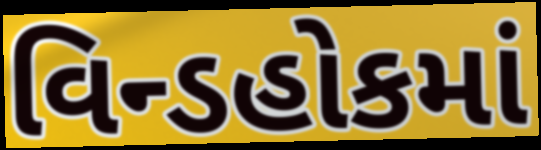
વિન્ડહોકમાં